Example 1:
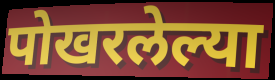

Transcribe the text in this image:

पोखरलेल्या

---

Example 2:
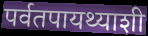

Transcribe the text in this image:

पर्वतपायथ्याशी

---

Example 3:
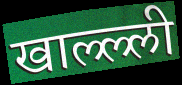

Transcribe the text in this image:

खाल्ल्ली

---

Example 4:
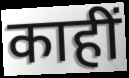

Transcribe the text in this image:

काहीं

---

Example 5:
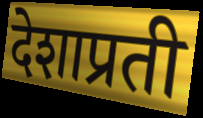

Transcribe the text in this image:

देशाप्रती